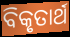
ବିକୃତାର୍ଥ